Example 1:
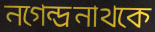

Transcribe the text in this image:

নগেন্দ্রনাথকে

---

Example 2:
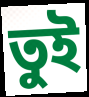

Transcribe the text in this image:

তুই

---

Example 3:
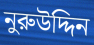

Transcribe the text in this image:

নুরুউদ্দিন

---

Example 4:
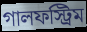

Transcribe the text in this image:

গালফস্ট্রিম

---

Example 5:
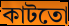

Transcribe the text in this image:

কাটতো